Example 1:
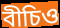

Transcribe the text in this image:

বীচিও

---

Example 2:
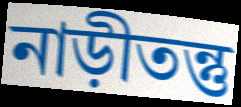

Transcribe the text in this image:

নাড়ীতন্তু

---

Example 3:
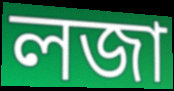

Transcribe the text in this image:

লজা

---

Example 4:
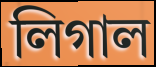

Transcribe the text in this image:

লিগাল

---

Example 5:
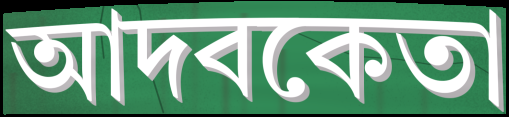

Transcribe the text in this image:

আদবকেতা